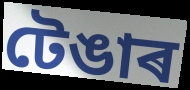
টেঙাৰ